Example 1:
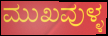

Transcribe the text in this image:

ಮುಖವುಳ್ಳ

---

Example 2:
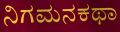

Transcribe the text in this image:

ನಿಗಮನಕಥಾ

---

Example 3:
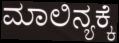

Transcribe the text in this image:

ಮಾಲಿನ್ಯಕ್ಕೆ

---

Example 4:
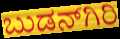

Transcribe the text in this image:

ಬುಡನ್‍ಗಿರಿ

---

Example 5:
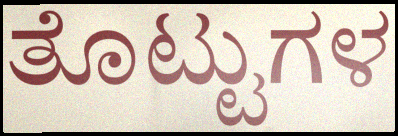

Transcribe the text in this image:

ತೊಟ್ಟುಗಳ